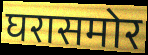
घरासमोर